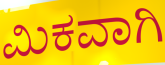
ಮಿಕವಾಗಿ